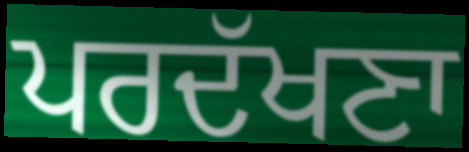
ਪਰਦੱਖਣਾ